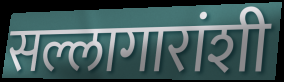
सल्लागारांशी